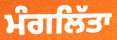
ਮੰਗਲਿੱਤਾ